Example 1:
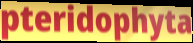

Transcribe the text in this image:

pteridophyta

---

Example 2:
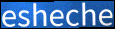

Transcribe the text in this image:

esheche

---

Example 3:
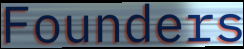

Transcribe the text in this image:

Founders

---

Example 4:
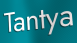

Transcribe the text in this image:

Tantya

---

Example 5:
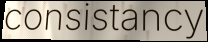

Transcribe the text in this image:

consistancy